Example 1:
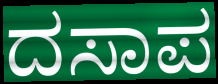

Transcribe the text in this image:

ದಸಾಪ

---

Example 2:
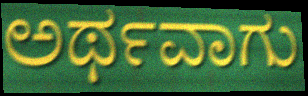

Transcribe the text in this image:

ಅರ್ಥವಾಗು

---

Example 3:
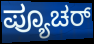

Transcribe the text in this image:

ಪ್ಯೂಚರ್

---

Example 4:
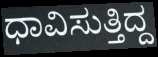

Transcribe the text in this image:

ಧಾವಿಸುತ್ತಿದ್ದ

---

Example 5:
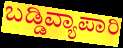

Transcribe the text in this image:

ಬಡ್ಡಿವ್ಯಾಪಾರಿ